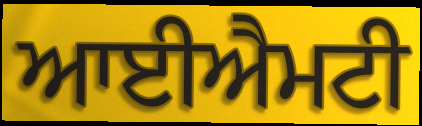
ਆਈਐਮਟੀ